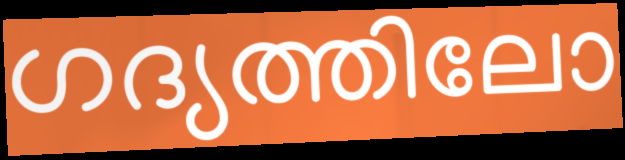
ഗദ്യത്തിലോ